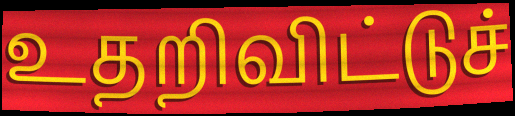
உதறிவிட்டுச்